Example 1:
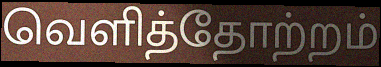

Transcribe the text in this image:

வெளித்தோற்றம்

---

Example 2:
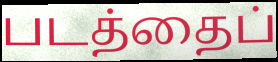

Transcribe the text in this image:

படத்தைப்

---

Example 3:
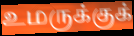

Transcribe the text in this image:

உமருக்குக்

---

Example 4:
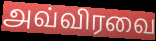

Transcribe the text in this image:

அவ்விரவை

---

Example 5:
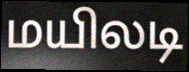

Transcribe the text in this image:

மயிலடி